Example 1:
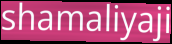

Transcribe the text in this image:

shamaliyaji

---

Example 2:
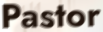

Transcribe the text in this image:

Pastor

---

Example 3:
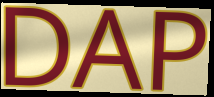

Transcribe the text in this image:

DAP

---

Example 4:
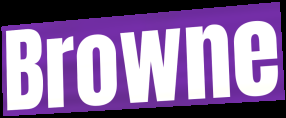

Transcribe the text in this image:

Browne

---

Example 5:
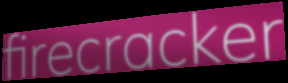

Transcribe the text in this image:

firecracker